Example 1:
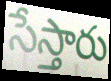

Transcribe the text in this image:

సేస్తారు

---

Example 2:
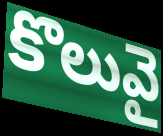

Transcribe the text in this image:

కొలువై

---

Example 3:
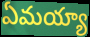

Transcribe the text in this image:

ఏమయ్యా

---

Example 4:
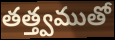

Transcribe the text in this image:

తత్త్వముతో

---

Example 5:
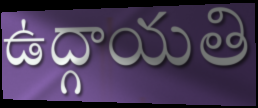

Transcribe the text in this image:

ఉద్గాయతి